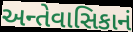
અન્તેવાસિકાનં